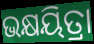
ଭକ୍ଷୟିତ୍ରା